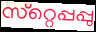
സ്‌റ്റെപ്പപ്പു